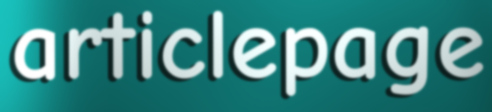
articlepage